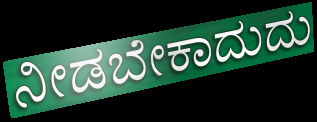
ನೀಡಬೇಕಾದುದು